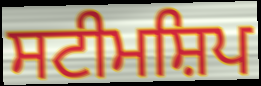
ਸਟੀਮਸ਼ਿਪ